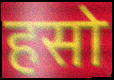
हसो